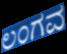
ಲಂಗವ